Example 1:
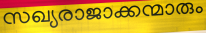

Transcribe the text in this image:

സഖ്യരാജാക്കന്മാരും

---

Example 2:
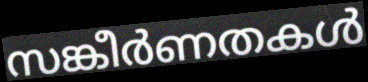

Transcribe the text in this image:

സങ്കീർണതകൾ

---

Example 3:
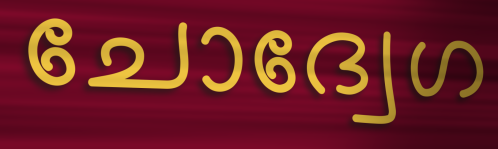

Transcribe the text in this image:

ചോദ്വേഗ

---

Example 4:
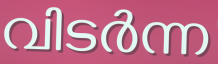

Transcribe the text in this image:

വിടർന്ന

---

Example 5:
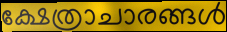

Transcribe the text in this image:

ക്ഷേത്രാചാരങ്ങൾ